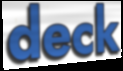
deck